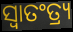
ସ୍ଵାତଂତ୍ର୍ୟ